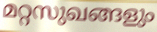
മറ്റസുഖങ്ങളും